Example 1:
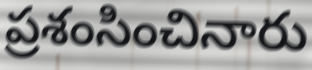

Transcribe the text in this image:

ప్రశంసించినారు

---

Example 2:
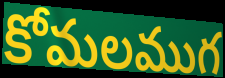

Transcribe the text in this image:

కోమలముగ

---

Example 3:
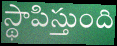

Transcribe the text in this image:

స్థాపిస్తుంది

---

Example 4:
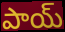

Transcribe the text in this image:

పాయ్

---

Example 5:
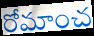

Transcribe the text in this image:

రోమాంచ